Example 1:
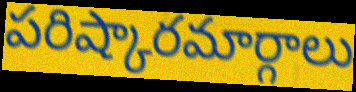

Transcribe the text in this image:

పరిష్కారమార్గాలు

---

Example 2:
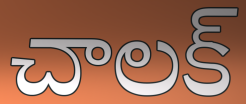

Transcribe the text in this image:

చాలక్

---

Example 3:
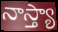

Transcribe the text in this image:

నాస్త్యా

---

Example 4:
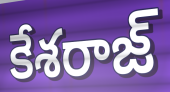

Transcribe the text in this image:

కేశరాజ్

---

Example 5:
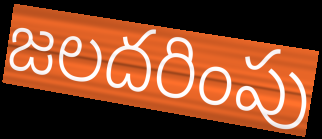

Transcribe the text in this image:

జలదరింపు